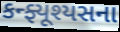
કન્ફ્યૂશ્યસના